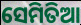
ସେମିତିଆ